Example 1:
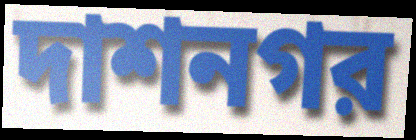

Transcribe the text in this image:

দাশনগর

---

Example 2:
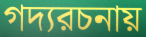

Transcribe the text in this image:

গদ্যরচনায়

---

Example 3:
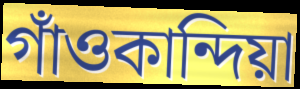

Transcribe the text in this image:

গাঁওকান্দিয়া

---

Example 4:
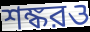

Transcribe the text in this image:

শঙ্করও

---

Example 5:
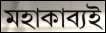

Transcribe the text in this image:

মহাকাব্যই